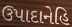
ઉપાદાનેહિ